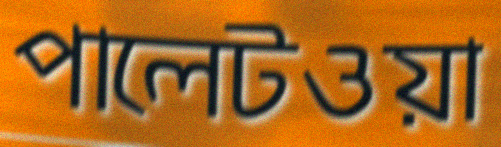
পালেটওয়া